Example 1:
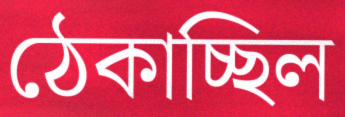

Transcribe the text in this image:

ঠেকাচ্ছিল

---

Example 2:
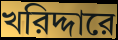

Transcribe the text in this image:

খরিদ্দারে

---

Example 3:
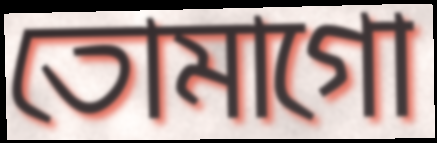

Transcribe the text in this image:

তোমাগো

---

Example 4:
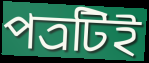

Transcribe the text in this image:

পত্রটিই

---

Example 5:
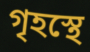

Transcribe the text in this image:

গৃহস্থে